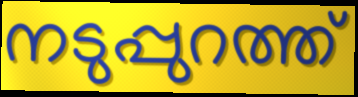
നടുപ്പുറത്ത്